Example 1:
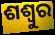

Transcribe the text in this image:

ଶଶ୍ୱୁର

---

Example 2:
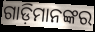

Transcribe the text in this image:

ଗାଡ଼ିମାନଙ୍କର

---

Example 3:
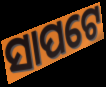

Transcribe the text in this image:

ସାପଟେ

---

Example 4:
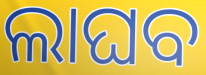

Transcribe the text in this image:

ଲାଘବ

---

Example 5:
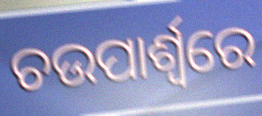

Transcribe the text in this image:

ଚଉପାର୍ଶ୍ୱରେ